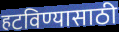
हटविण्यासाठी